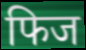
फिज